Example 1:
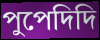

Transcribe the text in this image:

পুপেদিদি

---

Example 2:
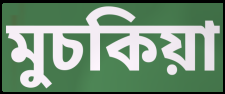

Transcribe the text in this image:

মুচকিয়া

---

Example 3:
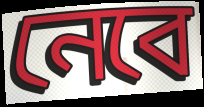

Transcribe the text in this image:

নেবে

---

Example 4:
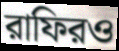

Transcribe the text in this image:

রাফিরও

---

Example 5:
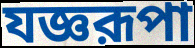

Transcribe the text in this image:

যজ্ঞরূপা